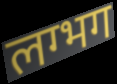
लग्भग